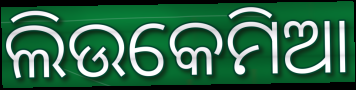
ଲିଉକେମିଆ